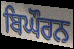
ਬਿਘੌਰਨ